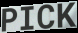
PICK